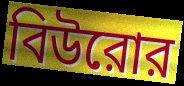
বিউরোর